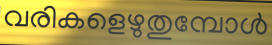
വരികളെഴുതുമ്പോൾ